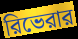
রিভেরার